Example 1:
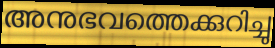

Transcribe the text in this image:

അനുഭവത്തെക്കുറിച്ചു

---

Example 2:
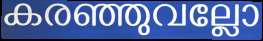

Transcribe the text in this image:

കരഞ്ഞുവല്ലോ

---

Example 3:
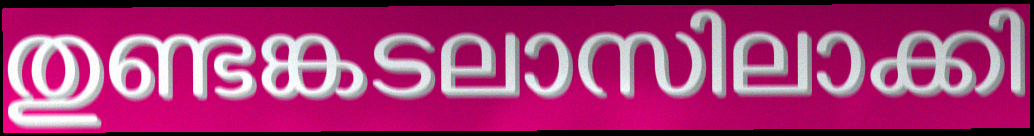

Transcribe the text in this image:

തുണ്ടങ്കടലാസിലാക്കി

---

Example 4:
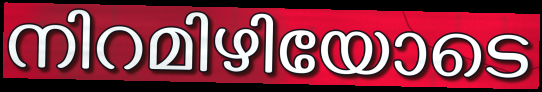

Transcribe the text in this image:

നിറമിഴിയോടെ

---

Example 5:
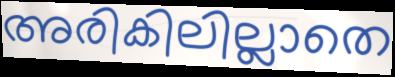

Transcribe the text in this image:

അരികിലില്ലാതെ